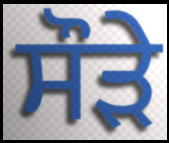
ਸੌੜੇ